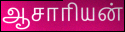
ஆசாரியன்